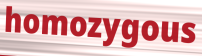
homozygous